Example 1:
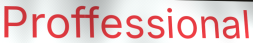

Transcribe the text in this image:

Proffessional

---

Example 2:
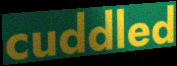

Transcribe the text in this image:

cuddled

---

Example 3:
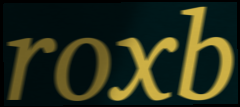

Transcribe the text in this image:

roxb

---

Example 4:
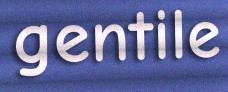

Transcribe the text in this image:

gentile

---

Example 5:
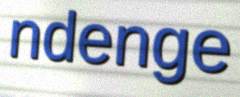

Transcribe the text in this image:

ndenge